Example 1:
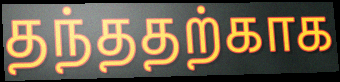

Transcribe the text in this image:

தந்ததற்காக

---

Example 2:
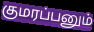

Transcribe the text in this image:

குமரப்பனும்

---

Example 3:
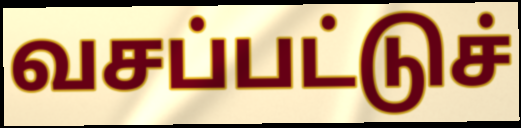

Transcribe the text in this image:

வசப்பட்டுச்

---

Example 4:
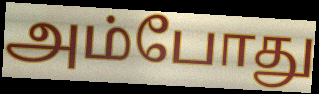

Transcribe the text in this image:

அம்போது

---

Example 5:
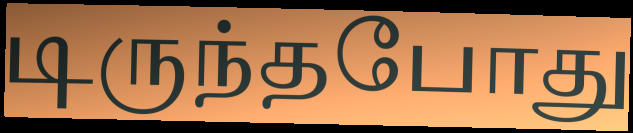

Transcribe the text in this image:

டிருந்தபோது